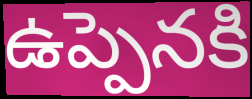
ఉప్పెనకి